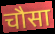
चौसा